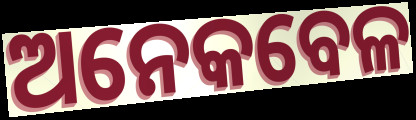
ଅନେକବେଳ